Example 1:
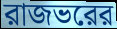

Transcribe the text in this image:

রাজভরের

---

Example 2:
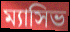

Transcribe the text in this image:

ম্যাসিভ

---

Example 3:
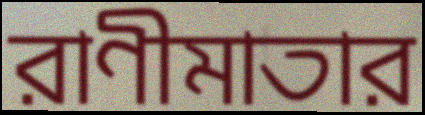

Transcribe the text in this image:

রাণীমাতার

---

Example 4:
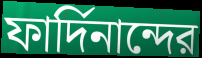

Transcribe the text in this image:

ফার্দিনান্দের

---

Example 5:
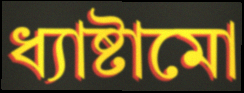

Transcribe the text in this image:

ধ্যাষ্টামো